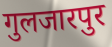
गुलजारपुर